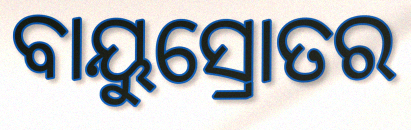
ବାୟୁସ୍ରୋତର